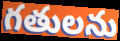
గతులను